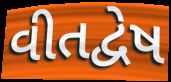
વીતદ્વેષ